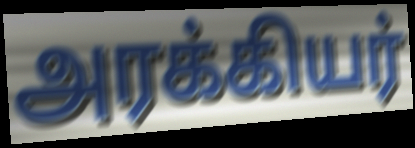
அரக்கியர்